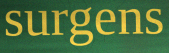
surgens